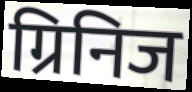
ग्रिनिज